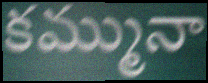
కమ్మునా